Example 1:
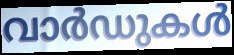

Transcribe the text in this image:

വാർഡുകൾ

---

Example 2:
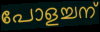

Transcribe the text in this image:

പോളച്ചന്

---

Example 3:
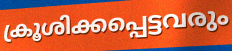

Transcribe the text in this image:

ക്രൂശിക്കപ്പെട്ടവരും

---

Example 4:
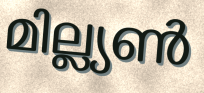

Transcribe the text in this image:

മില്ല്യൺ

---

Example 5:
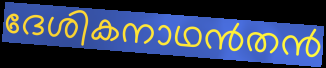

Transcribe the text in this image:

ദേശികനാഥൻതൻ